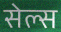
सेल्स